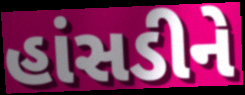
હાંસડીને